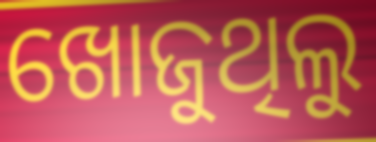
ଖୋଜୁଥିଲୁ